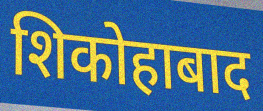
शिकोहाबाद